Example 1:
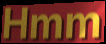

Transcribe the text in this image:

Hmm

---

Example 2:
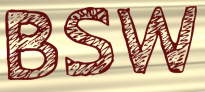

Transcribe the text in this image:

BSW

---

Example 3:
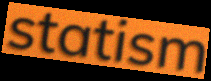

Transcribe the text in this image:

statism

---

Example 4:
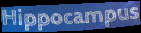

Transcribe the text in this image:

Hippocampus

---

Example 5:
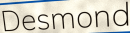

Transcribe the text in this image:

Desmond